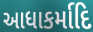
આધાકર્માદિ